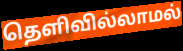
தெளிவில்லாமல்